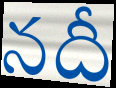
నదీ